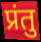
प्रंतु